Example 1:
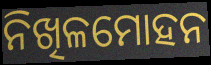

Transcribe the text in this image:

ନିଖିଳମୋହନ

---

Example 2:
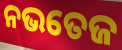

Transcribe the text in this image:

ନଭତେଜ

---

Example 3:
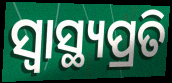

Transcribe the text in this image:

ସ୍ବାସ୍ଥ୍ୟପ୍ରତି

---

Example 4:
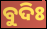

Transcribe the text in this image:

ବୁଦିଃ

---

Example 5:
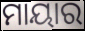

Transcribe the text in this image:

ମାୟାର